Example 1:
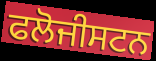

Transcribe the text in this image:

ਫਲੋਜੀਸਟਨ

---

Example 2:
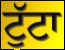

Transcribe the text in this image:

ਟੁੱਟਾ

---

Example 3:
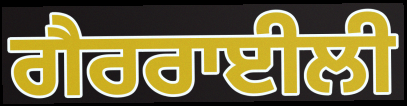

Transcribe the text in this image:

ਗੈਰਰਾਈਲੀ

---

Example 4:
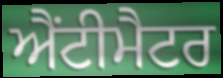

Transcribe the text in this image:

ਐਂਟੀਮੈਟਰ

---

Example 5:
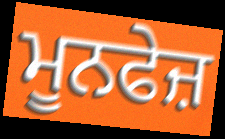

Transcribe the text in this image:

ਮੂਨਫੇਜ਼